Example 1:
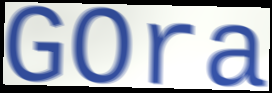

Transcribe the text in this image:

GOra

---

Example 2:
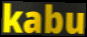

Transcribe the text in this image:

kabu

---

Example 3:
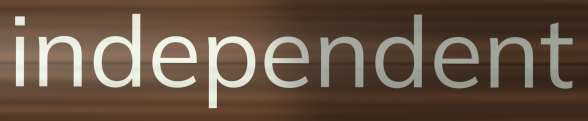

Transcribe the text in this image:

independent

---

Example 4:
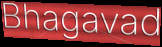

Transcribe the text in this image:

Bhagavad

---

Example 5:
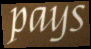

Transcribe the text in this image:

pays